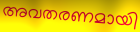
അവതരണമായി